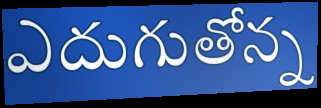
ఎదుగుతోన్న